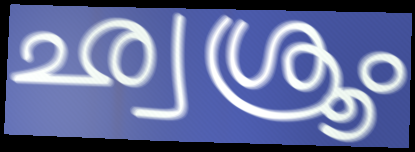
ഛ്വശ്രൂം